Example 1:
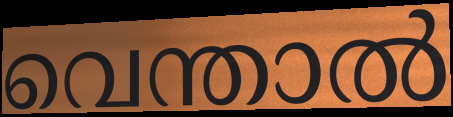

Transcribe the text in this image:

വെന്താൽ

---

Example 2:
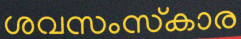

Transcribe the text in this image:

ശവസംസ്‌കാര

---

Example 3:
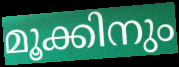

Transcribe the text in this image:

മൂക്കിനും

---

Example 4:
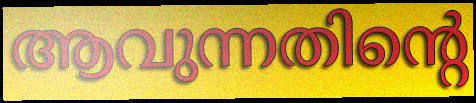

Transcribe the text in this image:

ആവുന്നതിന്റെ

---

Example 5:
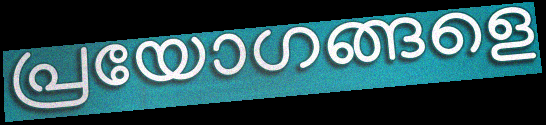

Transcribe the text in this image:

പ്രയോഗങ്ങളെ